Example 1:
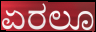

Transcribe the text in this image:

ಏರಲೂ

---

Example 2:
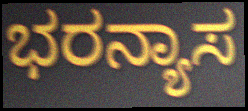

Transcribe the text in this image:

ಭರನ್ಯಾಸ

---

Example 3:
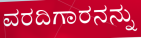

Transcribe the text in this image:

ವರದಿಗಾರನನ್ನು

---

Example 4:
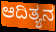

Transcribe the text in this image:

ಆದಿತ್ಯನ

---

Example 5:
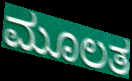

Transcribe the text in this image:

ಮೂಲತ